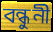
বন্ধুনী